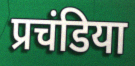
प्रचंडिया